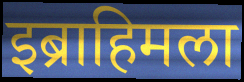
इब्राहिमला